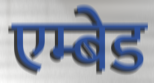
एम्बेड